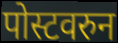
पोस्टवरुन